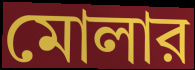
মোলার